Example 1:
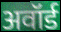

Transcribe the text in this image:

अवॉर्ड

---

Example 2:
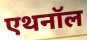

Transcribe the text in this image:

एथनॉल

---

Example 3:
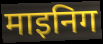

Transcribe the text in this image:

माइनिग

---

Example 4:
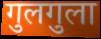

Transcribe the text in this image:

गुलगुला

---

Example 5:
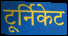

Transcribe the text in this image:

टूर्निकेट